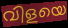
വിളയെ